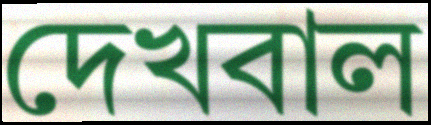
দেখবাল